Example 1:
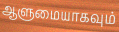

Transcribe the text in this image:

ஆளுமையாகவும்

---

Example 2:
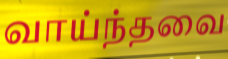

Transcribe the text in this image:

வாய்ந்தவை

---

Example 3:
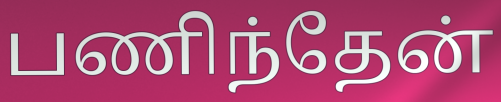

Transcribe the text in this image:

பணிந்தேன்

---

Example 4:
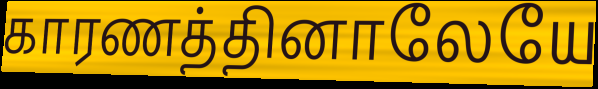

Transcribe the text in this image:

காரணத்தினாலேயே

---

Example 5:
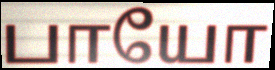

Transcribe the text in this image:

பாயோ